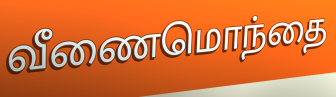
வீணைமொந்தை